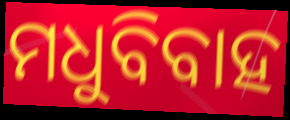
ମଧୁବିବାହ